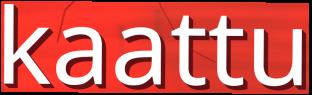
kaattu